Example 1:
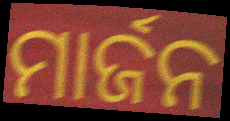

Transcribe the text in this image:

ମାର୍ଜନ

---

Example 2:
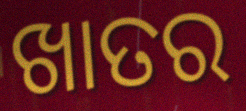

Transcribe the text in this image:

ଖାତର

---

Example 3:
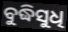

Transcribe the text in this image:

ବୁଦ୍ଧିସୁଧି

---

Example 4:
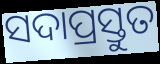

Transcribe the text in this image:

ସଦାପ୍ରସ୍ତୁତ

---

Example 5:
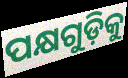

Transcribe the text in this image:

ପକ୍ଷଗୁଡ଼ିକୁ